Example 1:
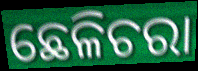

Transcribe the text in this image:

ଛେଳିଚରା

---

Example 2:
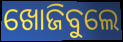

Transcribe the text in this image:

ଖୋଜିବୁଲେ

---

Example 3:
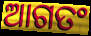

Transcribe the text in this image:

ଆଗତଂ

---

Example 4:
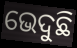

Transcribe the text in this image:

ଭେଦୁଛି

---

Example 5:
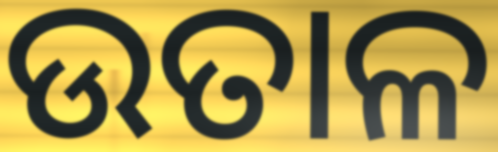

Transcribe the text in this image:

ଉତାଳ